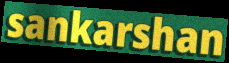
sankarshan